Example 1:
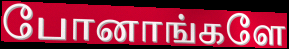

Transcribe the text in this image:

போனாங்களே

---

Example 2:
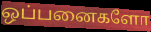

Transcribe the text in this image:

ஒப்பனைகளோ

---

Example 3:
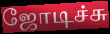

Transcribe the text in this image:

ஜோடிச்சு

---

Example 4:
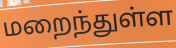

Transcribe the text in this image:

மறைந்துள்ள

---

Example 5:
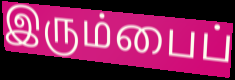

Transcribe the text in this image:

இரும்பைப்